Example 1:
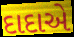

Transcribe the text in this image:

દાદાએ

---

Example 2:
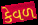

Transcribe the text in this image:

કેવળ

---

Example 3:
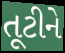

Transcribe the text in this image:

તૂટીને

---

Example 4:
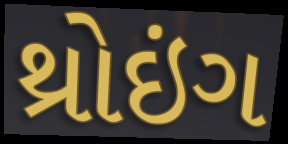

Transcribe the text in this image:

થ્રોઇંગ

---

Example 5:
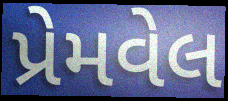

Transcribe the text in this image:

પ્રેમવેલ